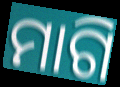
ମାଗି